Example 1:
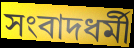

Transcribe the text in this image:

সংবাদধর্মী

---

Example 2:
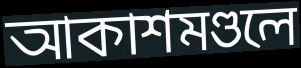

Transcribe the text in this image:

আকাশমণ্ডলে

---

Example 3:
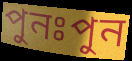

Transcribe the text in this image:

পুনঃপুন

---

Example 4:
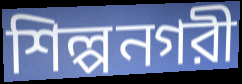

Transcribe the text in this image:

শিল্পনগরী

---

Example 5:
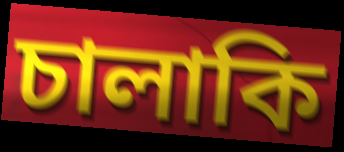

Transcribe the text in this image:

চালাকি